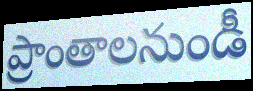
ప్రాంతాలనుండీ